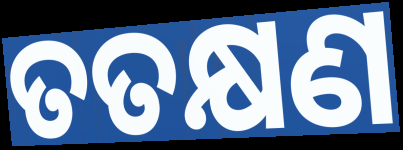
ତତକ୍ଷଣ